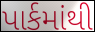
પાર્કમાંથી